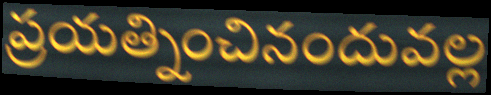
ప్రయత్నించినందువల్ల